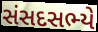
સંસદસભ્યે